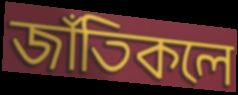
জাঁতিকলে